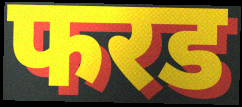
फरड